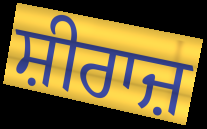
ਸ਼ੀਰਾਜ਼